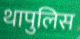
थापुलिस